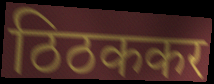
ठिठककर